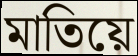
মাতিয়ে